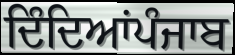
ਦਿੰਦਿਆਂਪੰਜਾਬ